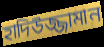
হাদিউজ্জামান